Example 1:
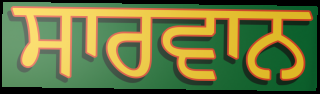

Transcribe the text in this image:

ਸਾਰਵਾਨ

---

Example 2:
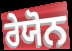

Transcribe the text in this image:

ਰੇਯੋਨ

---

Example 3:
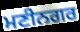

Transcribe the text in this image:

ਮਣੀਨਗਰ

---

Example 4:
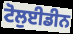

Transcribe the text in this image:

ਟੋਲੁਈਡੀਨ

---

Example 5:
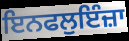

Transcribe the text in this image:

ਇਨਫਲੁਇੰਜ਼ਾ